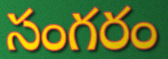
సంగరం